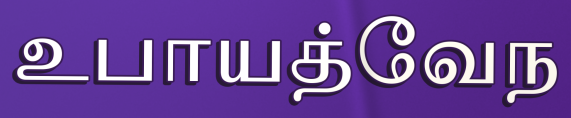
உபாயத்வேந